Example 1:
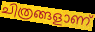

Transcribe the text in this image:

ചിത്രങ്ങളാണ്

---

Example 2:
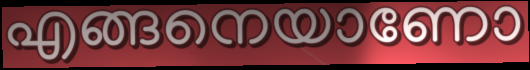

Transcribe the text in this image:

എങ്ങനെയാണോ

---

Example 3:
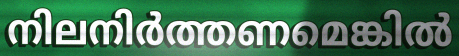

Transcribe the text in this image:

നിലനിർത്തണമെങ്കിൽ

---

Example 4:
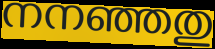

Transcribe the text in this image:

നനഞ്ഞതു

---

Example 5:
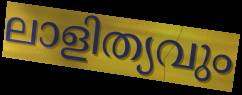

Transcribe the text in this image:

ലാളിത്യവും